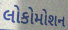
લોકોમોશન